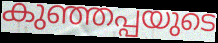
കുഞ്ഞപ്പയുടെ